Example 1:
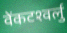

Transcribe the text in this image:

वेंकटश्वर्लु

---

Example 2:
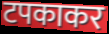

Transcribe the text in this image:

टपकाकर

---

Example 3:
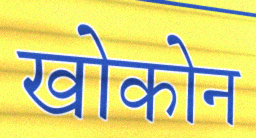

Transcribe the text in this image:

खोकोन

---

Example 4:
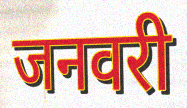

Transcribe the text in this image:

जनवरी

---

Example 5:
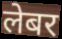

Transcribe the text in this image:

लेबर